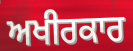
ਅਖੀਰਕਾਰ